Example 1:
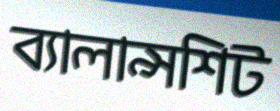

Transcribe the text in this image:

ব্যালান্সশিট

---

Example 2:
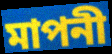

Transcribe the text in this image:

মাপনী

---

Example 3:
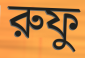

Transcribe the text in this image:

রুফু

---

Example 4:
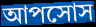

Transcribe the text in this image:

আপসোস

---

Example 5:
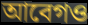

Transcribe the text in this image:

আবেগও